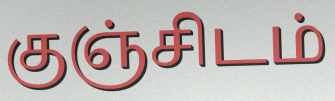
குஞ்சிடம்